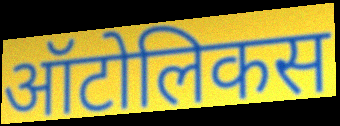
ऑटोलिकस